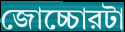
জোচ্চোরটা